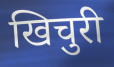
खिचुरी